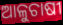
ଆଳୁଚାଷୀ